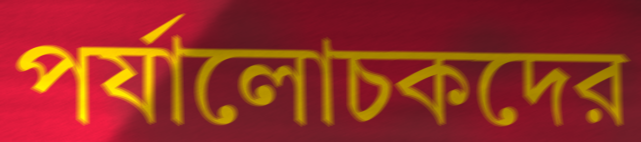
পর্যালোচকদের